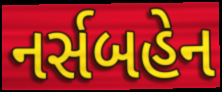
નર્સબહેન